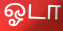
ஓடா